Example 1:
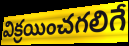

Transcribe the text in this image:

విక్రయించగలిగే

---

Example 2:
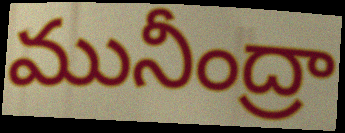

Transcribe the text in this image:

మునీంద్రా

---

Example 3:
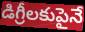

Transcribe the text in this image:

డిగ్రీలకుపైనే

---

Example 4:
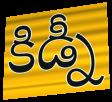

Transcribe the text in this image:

కిడ్నీ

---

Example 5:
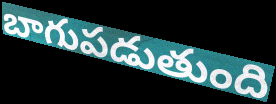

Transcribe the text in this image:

బాగుపడుతుంది